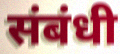
संबंधी